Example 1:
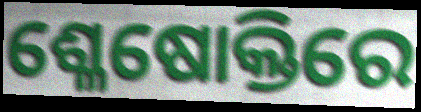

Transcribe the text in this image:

ଶ୍ଳେଷୋକ୍ତିରେ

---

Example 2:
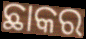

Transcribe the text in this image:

ଛାକର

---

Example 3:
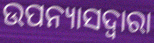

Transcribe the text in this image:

ଉପନ୍ୟାସଦ୍ୱାରା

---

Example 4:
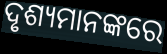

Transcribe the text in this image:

ଦୃଶ୍ୟମାନଙ୍କରେ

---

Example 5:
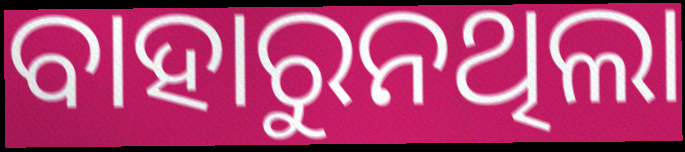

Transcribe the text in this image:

ବାହାରୁନଥିଲା